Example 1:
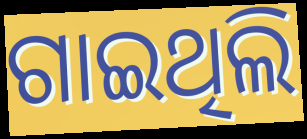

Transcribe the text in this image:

ଗାଇଥିଲି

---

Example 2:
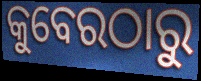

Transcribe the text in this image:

କୁବେରଠାରୁ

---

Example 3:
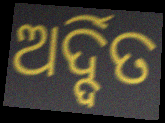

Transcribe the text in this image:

ଅର୍ଦ୍ଦିତ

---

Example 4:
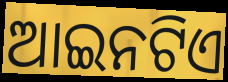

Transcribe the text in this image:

ଆଇନଟିଏ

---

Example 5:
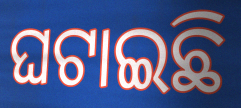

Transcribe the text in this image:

ଘଟାଇଛି